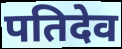
पतिदेव